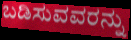
ಬಡಿಸುವವರನ್ನು